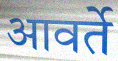
आवर्ते